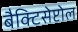
बैक्टिसेप्टोल